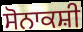
ਸੋਨਾਕਸ਼ੀ